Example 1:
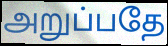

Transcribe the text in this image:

அறுப்பதே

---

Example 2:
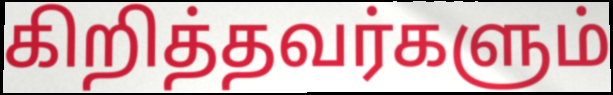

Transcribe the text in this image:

கிறித்தவர்களும்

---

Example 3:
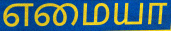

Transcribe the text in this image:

எமையா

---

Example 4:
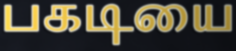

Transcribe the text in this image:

பகடியை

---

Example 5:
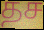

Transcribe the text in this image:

தச